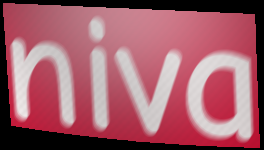
niva